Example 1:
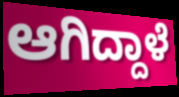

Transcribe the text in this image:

ಆಗಿದ್ದಾಳೆ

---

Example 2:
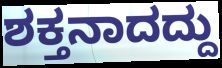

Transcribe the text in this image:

ಶಕ್ತನಾದದ್ದು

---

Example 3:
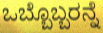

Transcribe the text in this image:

ಒಬ್ಬೊಬ್ಬರನ್ನೆ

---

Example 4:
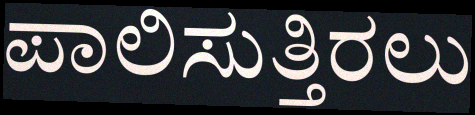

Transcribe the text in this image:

ಪಾಲಿಸುತ್ತಿರಲು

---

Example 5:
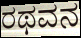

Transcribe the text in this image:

ರಥವನ